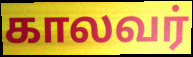
காலவர்